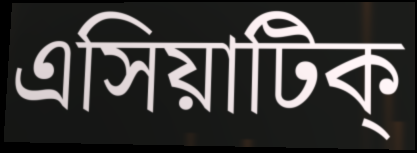
এসিয়াটিক্